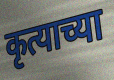
कृत्याच्या